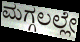
ಮಗ್ಗಲಲ್ಲೇ